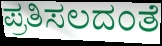
ಪ್ರತಿಸಲದಂತೆ